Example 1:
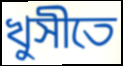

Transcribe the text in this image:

খুসীতে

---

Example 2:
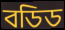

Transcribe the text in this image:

বডিড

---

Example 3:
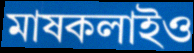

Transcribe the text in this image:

মাষকলাইও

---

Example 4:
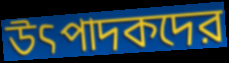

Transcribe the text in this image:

উৎপাদকদের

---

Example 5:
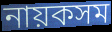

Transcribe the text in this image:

নায়কসম